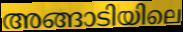
അങ്ങാടിയിലെ